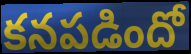
కనపడిందో